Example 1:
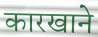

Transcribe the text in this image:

कारखाने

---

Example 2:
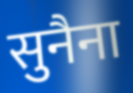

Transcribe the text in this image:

सुनैना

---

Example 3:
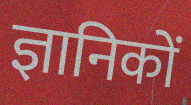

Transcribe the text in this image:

ज्ञानिकों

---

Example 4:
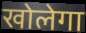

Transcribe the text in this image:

खोलेगा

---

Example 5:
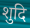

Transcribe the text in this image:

शुदि